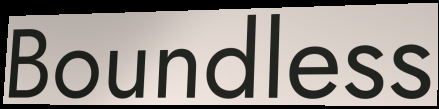
Boundless